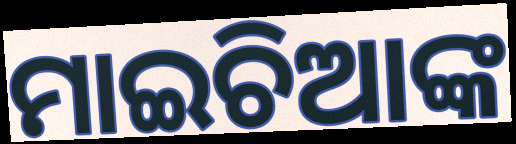
ମାଇଚିଆଙ୍କ